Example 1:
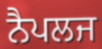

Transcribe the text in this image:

ਨੈਪਲਜ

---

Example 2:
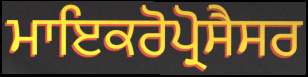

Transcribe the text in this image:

ਮਾਇਕਰੋਪ੍ਰੋਸੈਸਰ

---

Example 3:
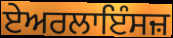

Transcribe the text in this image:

ਏਅਰਲਾਇੰਸਜ਼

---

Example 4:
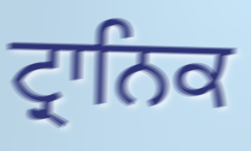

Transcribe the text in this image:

ਟ੍ਰਾਨਿਕ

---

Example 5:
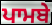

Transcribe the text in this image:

ਪਾਮਬੇ